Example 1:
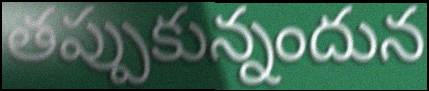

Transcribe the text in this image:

తప్పుకున్నందున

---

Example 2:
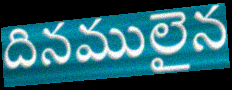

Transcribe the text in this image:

దినములైన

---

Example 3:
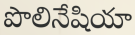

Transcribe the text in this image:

పొలినేషియా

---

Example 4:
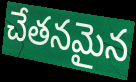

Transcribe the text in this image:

చేతనమైన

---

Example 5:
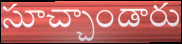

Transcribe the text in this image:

సూచ్చాండారు